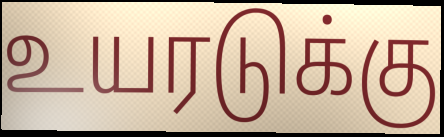
உயரடுக்கு